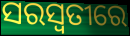
ସରସ୍ୱତୀରେ